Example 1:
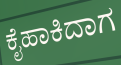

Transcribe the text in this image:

ಕೈಹಾಕಿದಾಗ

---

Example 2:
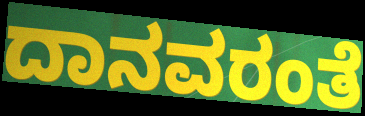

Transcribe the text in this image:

ದಾನವರಂತೆ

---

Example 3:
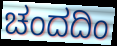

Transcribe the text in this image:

ಚಂದದಿಂ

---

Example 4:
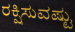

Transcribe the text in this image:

ರಕ್ಷಿಸುವಷ್ಟು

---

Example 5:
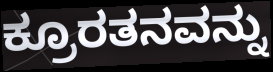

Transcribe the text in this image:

ಕ್ರೂರತನವನ್ನು